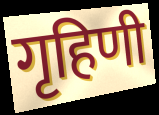
गृहिणी